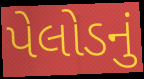
પેલોડનું